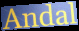
Andal